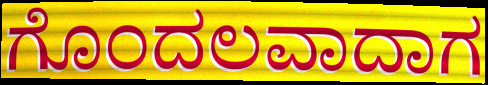
ಗೊಂದಲವಾದಾಗ